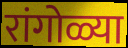
रांगोळ्या